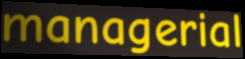
managerial